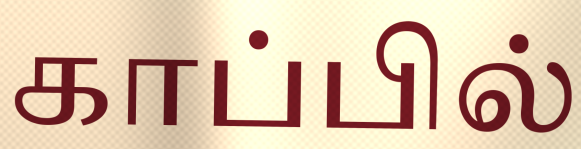
காப்பில்